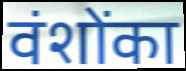
वंशोंका